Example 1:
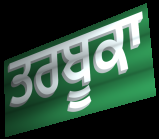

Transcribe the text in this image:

ਤਰਬੂਕਾ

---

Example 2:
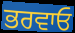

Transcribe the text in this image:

ਭਰਵਾਓ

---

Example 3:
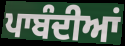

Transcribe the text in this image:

ਪਾਬੰਦੀਆਂ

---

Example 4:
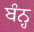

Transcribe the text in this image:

ਬੰਨ੍ਹ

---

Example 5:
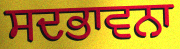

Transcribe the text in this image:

ਸਦਭਾਵਨਾ